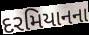
દરમિયાનના